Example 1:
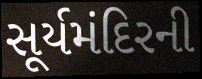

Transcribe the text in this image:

સૂર્યમંદિરની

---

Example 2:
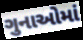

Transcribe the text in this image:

ગુનાઓમાં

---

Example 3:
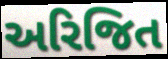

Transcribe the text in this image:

અરિજિત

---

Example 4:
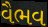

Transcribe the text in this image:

વૈભવ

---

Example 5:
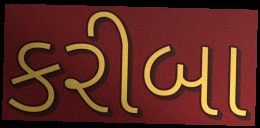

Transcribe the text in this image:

કરીબા